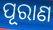
ପୂରାଣ